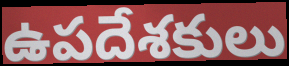
ఉపదేశకులు